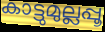
കാട്ടുമുല്ലപ്പൂ